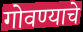
गोवण्याचे